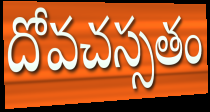
దోవచస్సతం